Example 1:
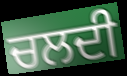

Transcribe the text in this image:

ਚਲਦੀ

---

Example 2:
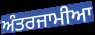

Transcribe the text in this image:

ਅੰਤਰਜਾਮੀਆ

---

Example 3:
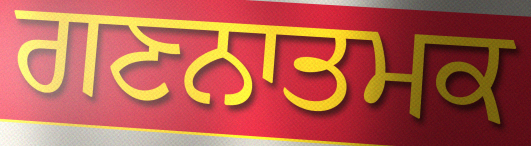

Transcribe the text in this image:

ਗਣਨਾਤਮਕ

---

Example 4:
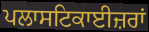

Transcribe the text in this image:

ਪਲਾਸਟਿਕਾਈਜ਼ਰਾਂ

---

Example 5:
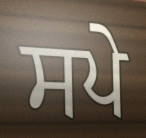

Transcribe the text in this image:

ਸਪੇ